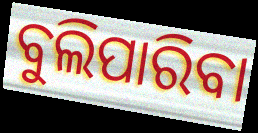
ବୁଲିପାରିବା